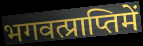
भगवत्प्राप्तिमें